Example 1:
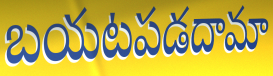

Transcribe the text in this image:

బయటపడదామా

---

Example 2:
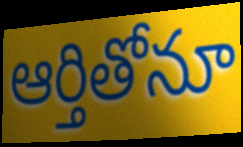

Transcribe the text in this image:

ఆర్తితోనూ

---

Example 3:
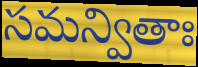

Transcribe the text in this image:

సమన్వితాః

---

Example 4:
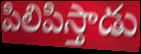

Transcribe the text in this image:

పిలిపిస్తాడు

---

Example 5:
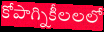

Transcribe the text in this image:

కోపాగ్నికీలలలో